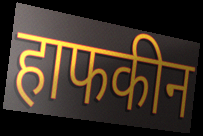
हाफकीन